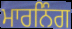
ਮਾਰਨਿੰਗ